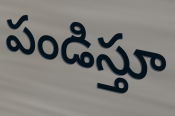
పండిస్తూ